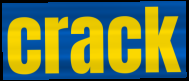
crack